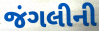
જંગલીની